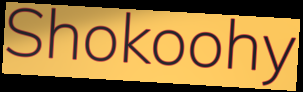
Shokoohy